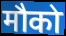
मौको